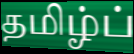
தமிழ்ப்